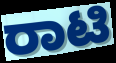
ರಾಟಿ